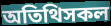
অতিথিসকল